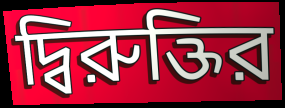
দ্বিরুক্তির